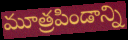
మూత్రపిండాన్ని